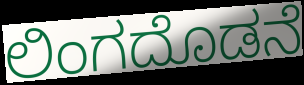
ಲಿಂಗದೊಡನೆ